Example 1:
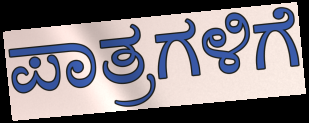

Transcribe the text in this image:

ಪಾತ್ರಗಳಿಗೆ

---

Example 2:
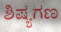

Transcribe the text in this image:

ಶಿಷ್ಯಗಣ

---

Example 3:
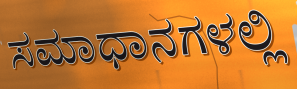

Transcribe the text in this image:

ಸಮಾಧಾನಗಳಲ್ಲಿ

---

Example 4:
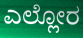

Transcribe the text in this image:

ಎಲ್ಲೋರ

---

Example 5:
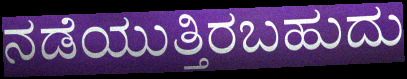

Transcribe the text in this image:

ನಡೆಯುತ್ತಿರಬಹುದು